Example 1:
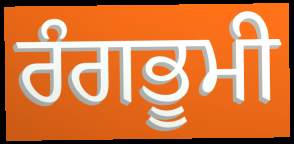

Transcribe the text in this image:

ਰੰਗਭੂਮੀ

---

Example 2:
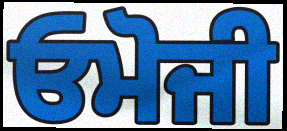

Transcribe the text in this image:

ਓਮੋਜੀ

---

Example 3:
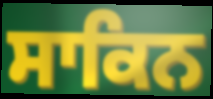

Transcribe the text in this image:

ਸਾਕਿਨ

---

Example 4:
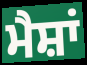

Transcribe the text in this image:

ਮੈਸ਼ਾਂ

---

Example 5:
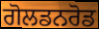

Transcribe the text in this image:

ਗੋਲਡਨਰੋਡ